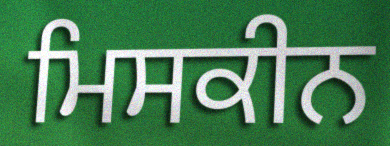
ਮਿਸਕੀਨ